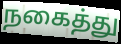
நகைத்து